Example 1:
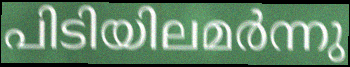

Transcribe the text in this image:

പിടിയിലമർന്നു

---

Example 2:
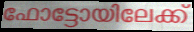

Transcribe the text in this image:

ഫോട്ടോയിലേക്ക്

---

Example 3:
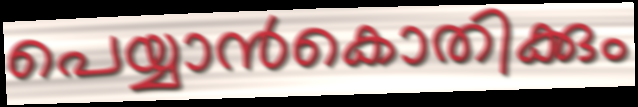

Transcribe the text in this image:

പെയ്യാൻകൊതിക്കും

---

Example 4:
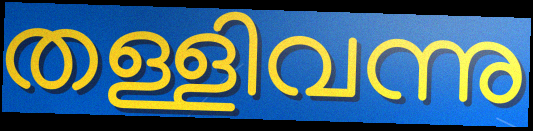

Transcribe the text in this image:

തള്ളിവന്നു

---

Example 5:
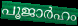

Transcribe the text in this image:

പൂജാർഹം